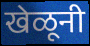
खेळूनी